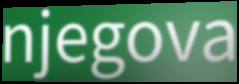
njegova